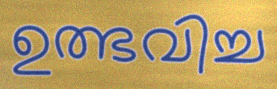
ഉത്ഭവിച്ച